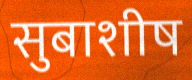
सुबाशीष